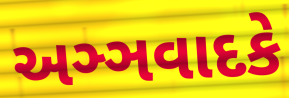
અઞ્ઞવાદકે